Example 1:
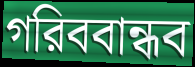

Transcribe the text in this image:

গরিববান্ধব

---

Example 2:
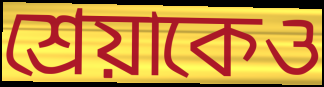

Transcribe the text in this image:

শ্রেয়াকেও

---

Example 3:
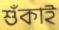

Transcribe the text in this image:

শুঁকাই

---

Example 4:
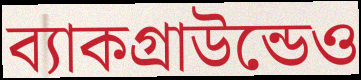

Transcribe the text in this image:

ব্যাকগ্রাউন্ডেও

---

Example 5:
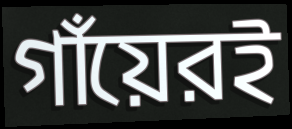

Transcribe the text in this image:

গাঁয়েরই